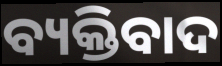
ବ୍ୟକ୍ତିବାଦ